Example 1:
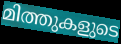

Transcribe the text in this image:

മിത്തുകളുടെ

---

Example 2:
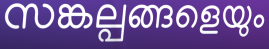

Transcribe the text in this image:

സങ്കല്പങ്ങളെയും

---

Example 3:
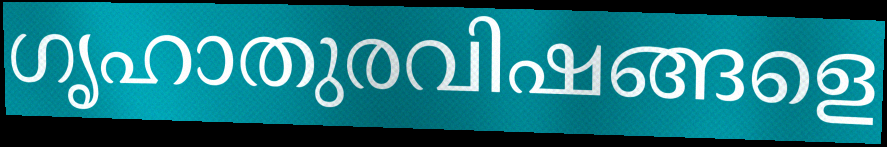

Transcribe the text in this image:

ഗൃഹാതുരവിഷങ്ങളെ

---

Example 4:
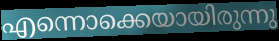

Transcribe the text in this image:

എന്നൊക്കെയായിരുന്നു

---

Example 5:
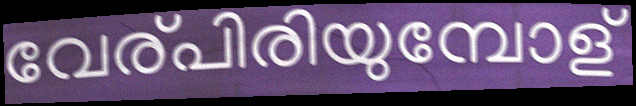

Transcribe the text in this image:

വേര്പിരിയുമ്പോള്